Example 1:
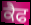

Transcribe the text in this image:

ਕੈਫ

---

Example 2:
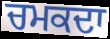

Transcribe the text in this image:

ਚਮਕਦਾ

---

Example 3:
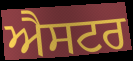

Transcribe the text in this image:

ਐਸਟਰ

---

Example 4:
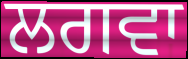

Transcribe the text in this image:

ਲਗਵਾ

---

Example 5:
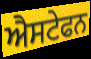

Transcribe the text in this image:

ਐਸਟੇਫਨ